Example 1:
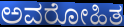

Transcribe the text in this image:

ಅವರೋಹಿತ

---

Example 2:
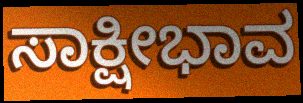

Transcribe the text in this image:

ಸಾಕ್ಷೀಭಾವ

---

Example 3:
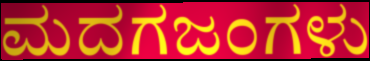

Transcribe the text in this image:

ಮದಗಜಂಗಳು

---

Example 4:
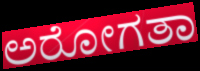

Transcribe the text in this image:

ಅರೋಗತಾ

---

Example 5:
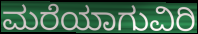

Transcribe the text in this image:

ಮರೆಯಾಗುವಿರಿ